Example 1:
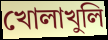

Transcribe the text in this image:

খোলাখুলি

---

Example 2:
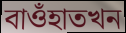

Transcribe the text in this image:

বাওঁহাতখন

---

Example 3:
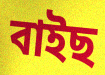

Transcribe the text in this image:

বাইছ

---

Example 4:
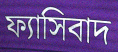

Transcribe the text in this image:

ফ্যাসিবাদ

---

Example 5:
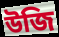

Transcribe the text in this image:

উজি